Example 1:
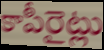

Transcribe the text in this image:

కాపీరైట్లు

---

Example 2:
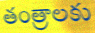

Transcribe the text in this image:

తంత్రాలకు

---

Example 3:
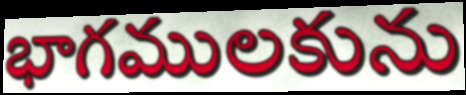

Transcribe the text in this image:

భాగములకును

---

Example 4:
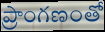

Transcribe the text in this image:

ప్రాంగణంతో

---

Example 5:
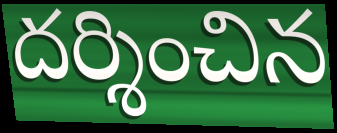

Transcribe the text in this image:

దర్శించిన